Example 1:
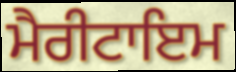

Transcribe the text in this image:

ਮੈਰੀਟਾਇਮ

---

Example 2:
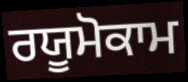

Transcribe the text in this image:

ਰਯੂਮੋਕਾਮ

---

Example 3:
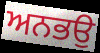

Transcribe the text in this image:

ਅਨਭਉ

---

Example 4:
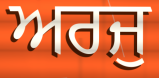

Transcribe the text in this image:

ਅਰਜੁ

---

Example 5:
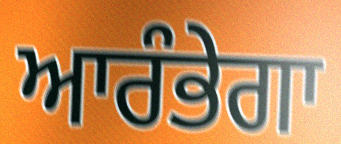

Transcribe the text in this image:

ਆਰੰਭੇਗਾ